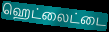
ஹெட்லைட்டை